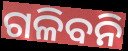
ଗଳିବନି